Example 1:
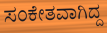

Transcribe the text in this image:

ಸಂಕೇತವಾಗಿದ್ದ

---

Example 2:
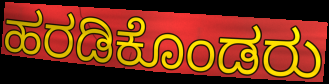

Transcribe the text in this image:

ಹರಡಿಕೊಂಡರು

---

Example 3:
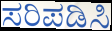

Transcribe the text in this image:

ಸರಿಪಡಿಸಿ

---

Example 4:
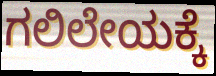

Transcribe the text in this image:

ಗಲಿಲೇಯಕ್ಕೆ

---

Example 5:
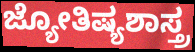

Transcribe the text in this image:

ಜ್ಯೋತಿಷ್ಯಶಾಸ್ತ್ರ